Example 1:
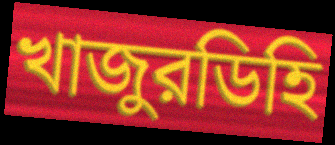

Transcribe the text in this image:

খাজুরডিহি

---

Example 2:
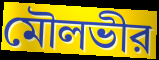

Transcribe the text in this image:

মৌলভীর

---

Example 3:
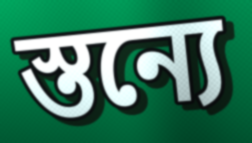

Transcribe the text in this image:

স্তন্যে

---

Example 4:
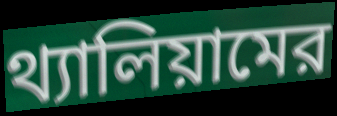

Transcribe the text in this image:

থ্যালিয়ামের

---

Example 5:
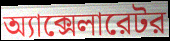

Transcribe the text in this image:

অ্যাক্সেলারেটর